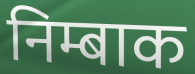
निम्बाक